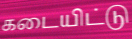
கடையிட்டு